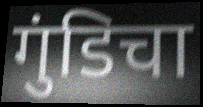
गुंडिचा